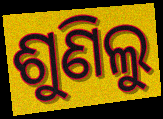
ଶୁଣିଲୁ